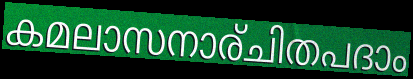
കമലാസനാര്ചിതപദാം